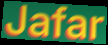
Jafar